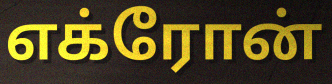
எக்ரோன்